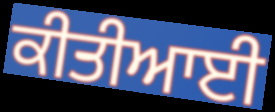
ਕੀਤੀਆਈ